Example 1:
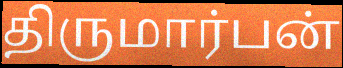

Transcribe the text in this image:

திருமார்பன்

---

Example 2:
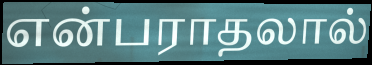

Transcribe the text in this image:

என்பராதலால்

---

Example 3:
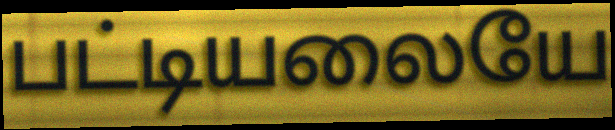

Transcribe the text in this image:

பட்டியலையே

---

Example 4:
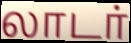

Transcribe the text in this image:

லாடர்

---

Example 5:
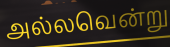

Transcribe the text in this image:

அல்லவென்று